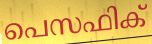
പെസഫിക്